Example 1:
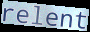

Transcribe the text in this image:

relent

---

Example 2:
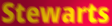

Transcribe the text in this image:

Stewarts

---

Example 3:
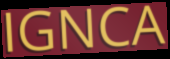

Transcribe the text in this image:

IGNCA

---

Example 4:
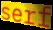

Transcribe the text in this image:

serf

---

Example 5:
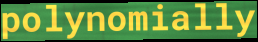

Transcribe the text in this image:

polynomially